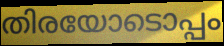
തിരയോടൊപ്പം